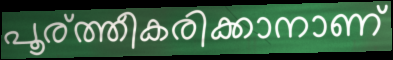
പൂര്ത്തീകരിക്കാനാണ്